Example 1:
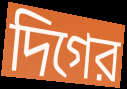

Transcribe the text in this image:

দিগের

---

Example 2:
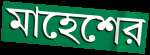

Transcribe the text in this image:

মাহেশের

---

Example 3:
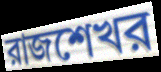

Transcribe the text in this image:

রাজশেখর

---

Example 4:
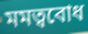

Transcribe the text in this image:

মমত্ববোধ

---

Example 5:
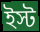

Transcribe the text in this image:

ইস্ট